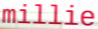
millie